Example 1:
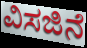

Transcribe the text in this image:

ವಿಸಜಿನೆ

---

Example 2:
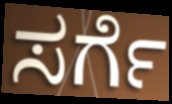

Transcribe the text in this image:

ಸರ್ಗೆ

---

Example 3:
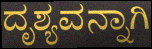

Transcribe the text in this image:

ದೃಶ್ಯವನ್ನಾಗಿ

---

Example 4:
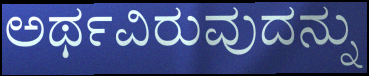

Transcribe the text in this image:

ಅರ್ಥವಿರುವುದನ್ನು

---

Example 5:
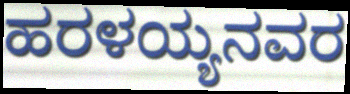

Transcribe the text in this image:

ಹರಳಯ್ಯನವರ